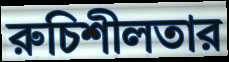
রুচিশীলতার